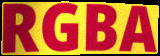
RGBA